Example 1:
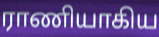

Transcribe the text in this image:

ராணியாகிய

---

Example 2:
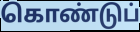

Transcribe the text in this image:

கொண்டுப்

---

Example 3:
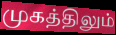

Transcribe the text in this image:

முகத்திலும்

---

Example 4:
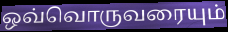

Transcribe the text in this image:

ஒவ்வொருவரையும்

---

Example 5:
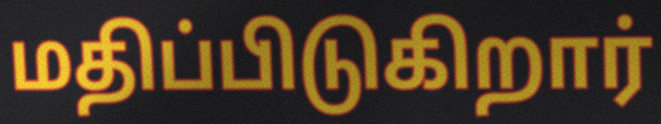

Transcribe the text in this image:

மதிப்பிடுகிறார்